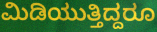
ಮಿಡಿಯುತ್ತಿದ್ದರೂ